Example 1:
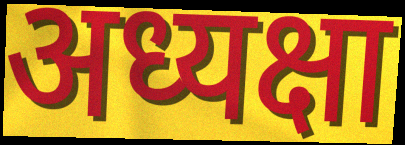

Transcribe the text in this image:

अध्यक्षा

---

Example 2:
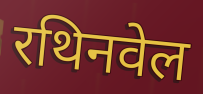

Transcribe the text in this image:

रथिनवेल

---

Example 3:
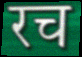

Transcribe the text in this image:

रच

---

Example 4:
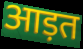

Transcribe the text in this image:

आड़त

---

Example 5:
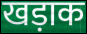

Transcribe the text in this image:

खड़ाक